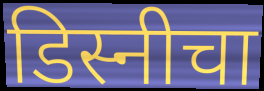
डिस्नीचा